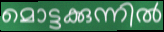
മൊട്ടക്കുന്നിൽ